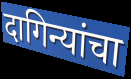
दागिन्यांचा